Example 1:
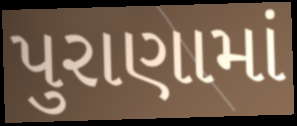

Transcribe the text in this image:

પુરાણામાં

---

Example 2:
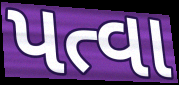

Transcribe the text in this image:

પત્વા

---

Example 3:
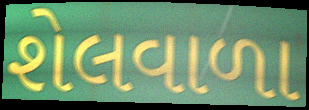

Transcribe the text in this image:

શેલવાળા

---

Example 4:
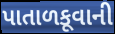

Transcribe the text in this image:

પાતાળકૂવાની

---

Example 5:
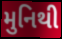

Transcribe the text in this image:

મુનિથી